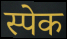
स्पेक